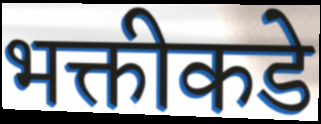
भक्तीकडे